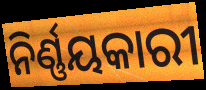
ନିର୍ଣ୍ଣୟକାରୀ